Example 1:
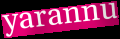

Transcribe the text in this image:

yarannu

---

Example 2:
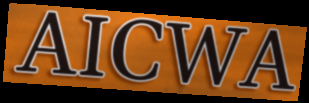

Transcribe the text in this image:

AICWA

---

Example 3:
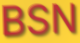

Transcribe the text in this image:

BSN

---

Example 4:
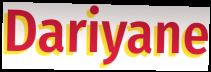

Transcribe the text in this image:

Dariyane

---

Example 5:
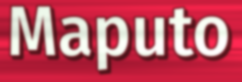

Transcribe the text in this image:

Maputo